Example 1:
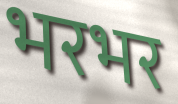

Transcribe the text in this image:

भरभर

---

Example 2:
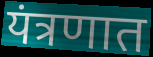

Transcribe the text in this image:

यंत्रणात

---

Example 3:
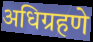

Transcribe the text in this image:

अधिग्रहणे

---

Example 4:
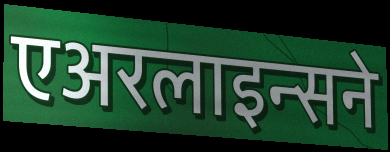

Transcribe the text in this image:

एअरलाइन्सने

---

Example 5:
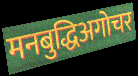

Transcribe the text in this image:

मनबुद्धिअगोचर